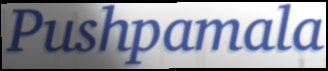
Pushpamala